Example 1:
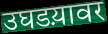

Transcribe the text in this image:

उघडय़ावर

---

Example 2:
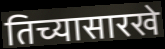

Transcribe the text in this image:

तिच्यासारखे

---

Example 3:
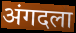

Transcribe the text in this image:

अंगदला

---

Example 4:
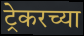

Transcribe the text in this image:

ट्रेकरच्या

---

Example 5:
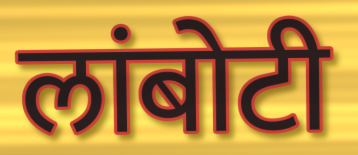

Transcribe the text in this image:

लांबोटी